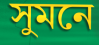
সুমনে